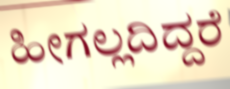
ಹೀಗಲ್ಲದಿದ್ದರೆ